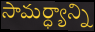
సామర్ధ్యాన్ని